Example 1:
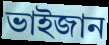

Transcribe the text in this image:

ভাইজান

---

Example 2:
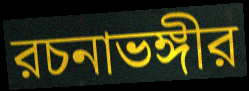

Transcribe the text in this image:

রচনাভঙ্গীর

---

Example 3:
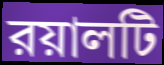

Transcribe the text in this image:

রয়ালটি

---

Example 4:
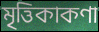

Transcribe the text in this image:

মৃত্তিকাকণা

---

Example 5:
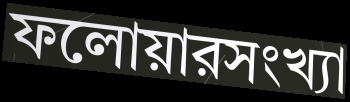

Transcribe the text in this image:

ফলোয়ারসংখ্যা